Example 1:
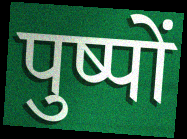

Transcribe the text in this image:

पुष्पों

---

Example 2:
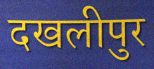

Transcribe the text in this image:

दखलीपुर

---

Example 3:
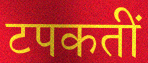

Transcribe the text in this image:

टपकतीं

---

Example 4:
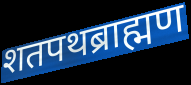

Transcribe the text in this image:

शतपथब्राह्मण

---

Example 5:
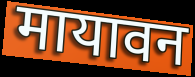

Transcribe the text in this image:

मायावन